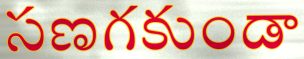
సణగకుండా